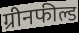
ग्रीनफील्ड